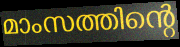
മാംസത്തിന്റെ